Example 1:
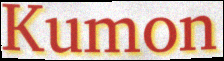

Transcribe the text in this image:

Kumon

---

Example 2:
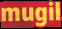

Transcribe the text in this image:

mugil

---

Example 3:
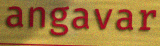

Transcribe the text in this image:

angavar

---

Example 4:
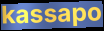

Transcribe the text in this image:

kassapo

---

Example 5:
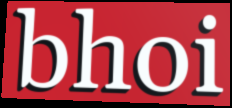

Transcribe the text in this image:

bhoi